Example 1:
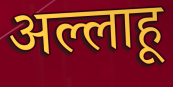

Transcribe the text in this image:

अल्लाहू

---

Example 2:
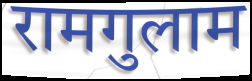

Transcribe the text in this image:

रामगुलाम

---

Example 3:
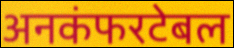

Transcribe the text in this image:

अनकंफरटेबल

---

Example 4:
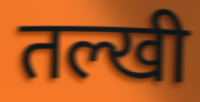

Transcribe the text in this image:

तल्‍खी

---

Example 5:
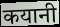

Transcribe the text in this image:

कयानी